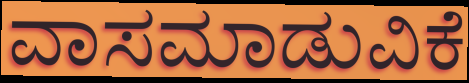
ವಾಸಮಾಡುವಿಕೆ